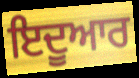
ਇਦੂਆਰ